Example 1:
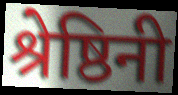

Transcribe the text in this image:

श्रेष्ठिनी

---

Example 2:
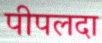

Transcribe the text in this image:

पीपलदा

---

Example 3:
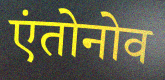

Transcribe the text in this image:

एंतोनोव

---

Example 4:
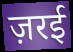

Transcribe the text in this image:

ज़रई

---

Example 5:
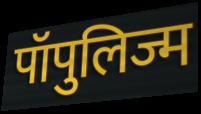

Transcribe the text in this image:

पॉपुलिज्म